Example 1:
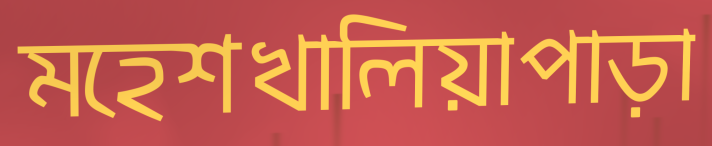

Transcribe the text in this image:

মহেশখালিয়াপাড়া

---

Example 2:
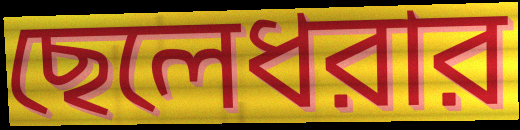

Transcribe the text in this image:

ছেলেধরার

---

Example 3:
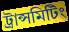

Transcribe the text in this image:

ট্রান্সমিটিং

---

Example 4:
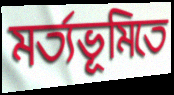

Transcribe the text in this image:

মর্ত্যভূমিতে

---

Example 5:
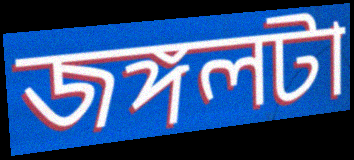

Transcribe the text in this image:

জঙ্গলটা